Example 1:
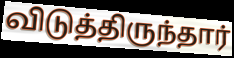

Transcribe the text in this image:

விடுத்திருந்தார்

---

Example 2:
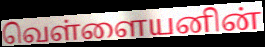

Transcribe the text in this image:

வெள்ளையனின்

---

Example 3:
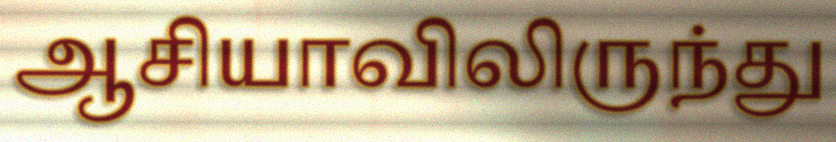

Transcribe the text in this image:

ஆசியாவிலிருந்து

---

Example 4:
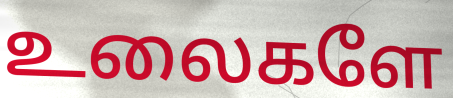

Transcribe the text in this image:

உலைகளே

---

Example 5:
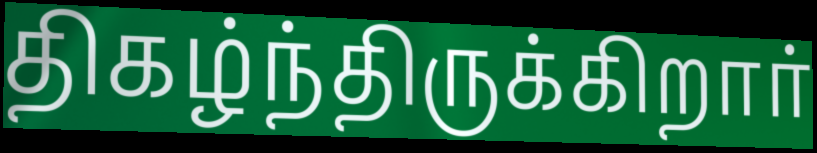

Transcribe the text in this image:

திகழ்ந்திருக்கிறார்